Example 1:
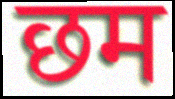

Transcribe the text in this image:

छम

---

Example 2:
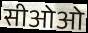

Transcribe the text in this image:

सीओओ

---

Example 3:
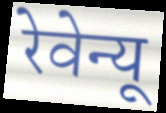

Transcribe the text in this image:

रेवेन्यू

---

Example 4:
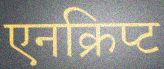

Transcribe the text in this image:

एनक्रिप्ट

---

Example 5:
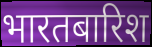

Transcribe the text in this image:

भारतबारिश